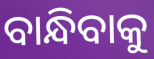
ବାନ୍ଧିବାକୁ